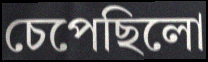
চেপেছিলো